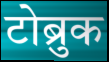
टोब्रुक